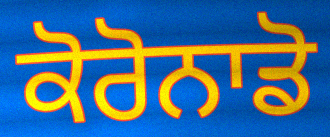
ਕੋਰੋਨਾਡੋ